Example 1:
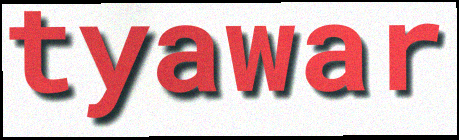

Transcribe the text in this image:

tyawar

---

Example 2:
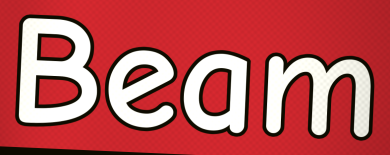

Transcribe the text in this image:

Beam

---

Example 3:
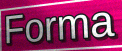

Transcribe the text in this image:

Forma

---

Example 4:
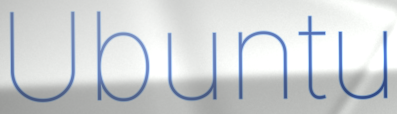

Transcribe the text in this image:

Ubuntu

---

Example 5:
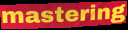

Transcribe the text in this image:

mastering